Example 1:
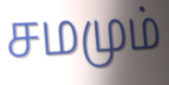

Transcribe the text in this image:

சமமும்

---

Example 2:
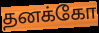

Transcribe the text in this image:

தனக்கோ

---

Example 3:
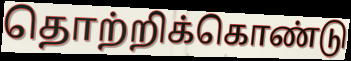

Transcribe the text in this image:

தொற்றிக்கொண்டு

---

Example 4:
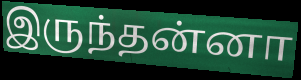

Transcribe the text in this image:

இருந்தன்னா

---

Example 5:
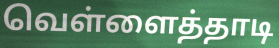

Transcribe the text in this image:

வெள்ளைத்தாடி